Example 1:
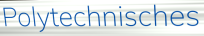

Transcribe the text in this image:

Polytechnisches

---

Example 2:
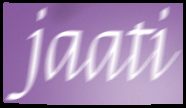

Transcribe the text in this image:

jaati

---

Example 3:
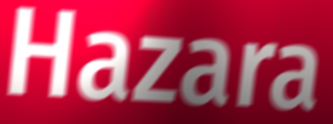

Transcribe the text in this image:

Hazara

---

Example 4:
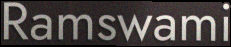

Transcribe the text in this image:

Ramswami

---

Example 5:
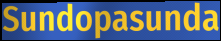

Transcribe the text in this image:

Sundopasunda